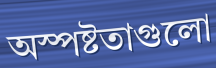
অস্পষ্টতাগুলো